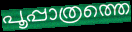
പൂപ്പാത്രത്തെ